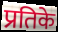
प्रतिके